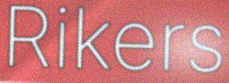
Rikers